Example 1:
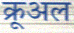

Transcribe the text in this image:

क्रूअल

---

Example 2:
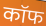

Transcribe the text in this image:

कॉफ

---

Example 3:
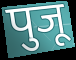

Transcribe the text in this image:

पुजू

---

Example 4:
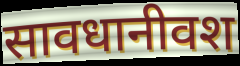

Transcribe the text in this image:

सावधानीवश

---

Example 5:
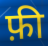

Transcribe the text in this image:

फ़ी